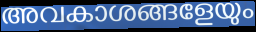
അവകാശങ്ങളേയും